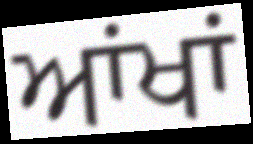
ਆਂਖਾਂ